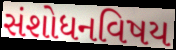
સંશોધનવિષય